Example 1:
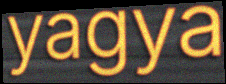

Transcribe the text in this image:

yagya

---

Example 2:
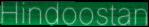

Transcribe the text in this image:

Hindoostan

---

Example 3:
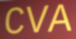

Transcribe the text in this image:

CVA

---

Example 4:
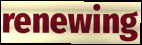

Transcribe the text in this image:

renewing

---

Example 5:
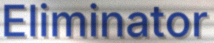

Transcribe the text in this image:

Eliminator